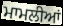
ਮਾਮਲੀਆਂ